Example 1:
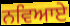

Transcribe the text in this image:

ਨਵਿਆਏ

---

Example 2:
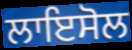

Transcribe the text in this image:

ਲਾਇਸੋਲ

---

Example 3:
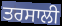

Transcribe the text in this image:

ਤਰਸਾਲੀ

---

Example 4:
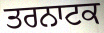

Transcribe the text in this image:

ਤਰਨਾਟਕ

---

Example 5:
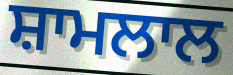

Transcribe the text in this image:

ਸ਼ਾਮਲਾਲ